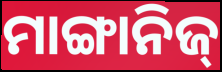
ମାଙ୍ଗାନିଜ୍